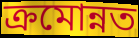
ক্রমোন্নত